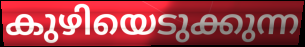
കുഴിയെടുക്കുന്ന